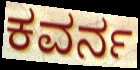
ಕವರ್ನ